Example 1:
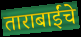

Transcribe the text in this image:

ताराबाईंचे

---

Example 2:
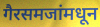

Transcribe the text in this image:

गैरसमजांमधून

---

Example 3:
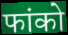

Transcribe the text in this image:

फांको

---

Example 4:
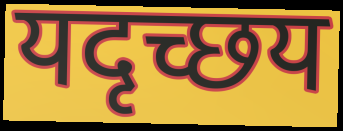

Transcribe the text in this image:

यदृच्छय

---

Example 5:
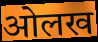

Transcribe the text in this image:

ओलख